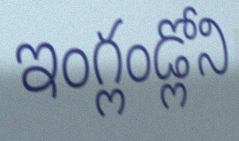
ఇంగ్లండ్లోని